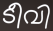
ടീവി